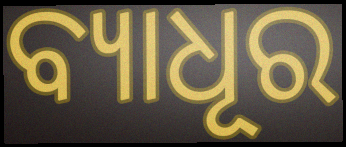
ବ୍ୟାଧୂର